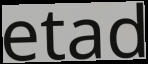
etad